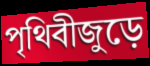
পৃথিবীজুড়ে